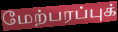
மேற்பரப்புக்